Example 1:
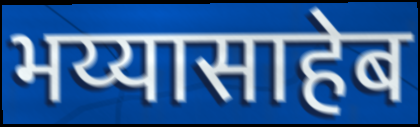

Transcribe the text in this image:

भय्यासाहेब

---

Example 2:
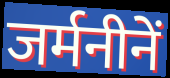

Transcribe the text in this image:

जर्मनीनें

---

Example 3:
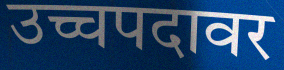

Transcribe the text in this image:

उच्चपदावर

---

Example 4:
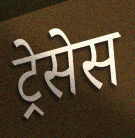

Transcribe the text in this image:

ट्रेसेस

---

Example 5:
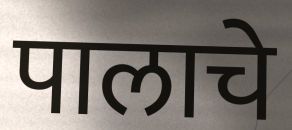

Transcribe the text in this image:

पालाचे